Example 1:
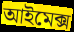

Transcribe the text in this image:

আইমেক্স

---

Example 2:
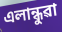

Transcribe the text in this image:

এলান্ধুৱা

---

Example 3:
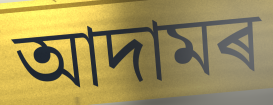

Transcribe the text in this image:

আদামৰ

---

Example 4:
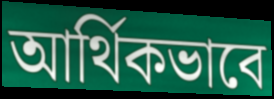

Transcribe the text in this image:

আৰ্থিকভাবে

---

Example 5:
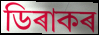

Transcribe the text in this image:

ডিৰাকৰ